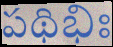
పథిభిః